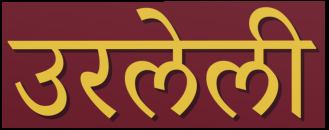
उरलेली